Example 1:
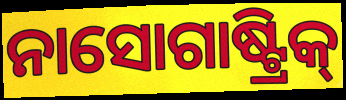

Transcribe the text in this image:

ନାସୋଗାଷ୍ଟ୍ରିକ୍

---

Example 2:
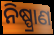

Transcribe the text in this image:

ନିଷ୍ପ୍ରାଣ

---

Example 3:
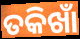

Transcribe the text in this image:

ତକିଖାଁ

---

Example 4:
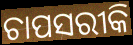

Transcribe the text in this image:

ଚାପସରୀକି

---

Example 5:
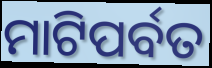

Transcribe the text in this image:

ମାଟିପର୍ବତ